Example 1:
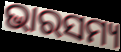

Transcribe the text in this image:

ଭାରସମ୍ୟ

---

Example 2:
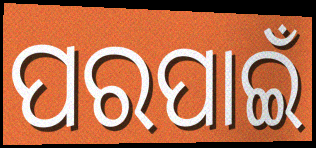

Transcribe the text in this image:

ପରପାଇଁ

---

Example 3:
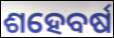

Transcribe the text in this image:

ଶହେବର୍ଷ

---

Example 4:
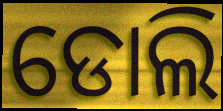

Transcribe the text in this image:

ଡୋଲି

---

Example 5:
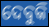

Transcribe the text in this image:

ଦେବୁକି